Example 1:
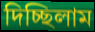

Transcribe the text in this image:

দিচ্ছিলাম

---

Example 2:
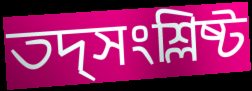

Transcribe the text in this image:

তদ্‌সংশ্লিষ্ট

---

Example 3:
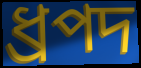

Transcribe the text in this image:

ধ্রপদ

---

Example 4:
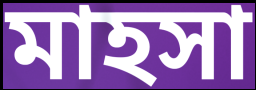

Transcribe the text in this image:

মাহসা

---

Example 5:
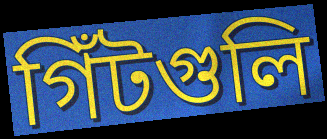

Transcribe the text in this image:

গিঁটগুলি